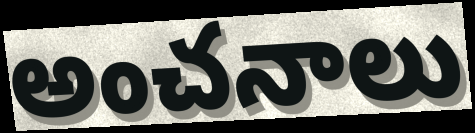
అంచనాలు